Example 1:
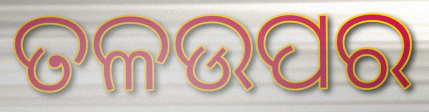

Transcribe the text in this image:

ତଳଉପର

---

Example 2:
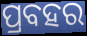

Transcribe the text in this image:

ପ୍ରବହର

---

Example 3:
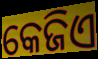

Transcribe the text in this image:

କେଜିଏ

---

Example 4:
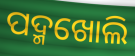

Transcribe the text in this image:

ପଦ୍ମଖୋଲି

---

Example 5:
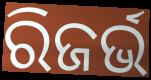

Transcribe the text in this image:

ରିଜର୍ଭ